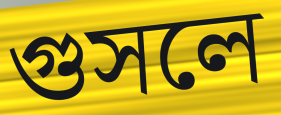
গুসলে